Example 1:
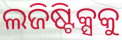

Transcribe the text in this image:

ଲଜିଷ୍ଟିକ୍ସକୁ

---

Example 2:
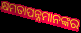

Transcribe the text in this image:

କ୍ଷମତାପନ୍ନମାନଙ୍କର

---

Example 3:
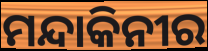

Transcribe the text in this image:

ମନ୍ଦାକିନୀର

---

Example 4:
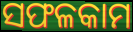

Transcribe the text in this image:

ସଫଳକାମ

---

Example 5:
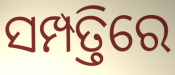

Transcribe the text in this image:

ସମ୍ପତ୍ତିରେ